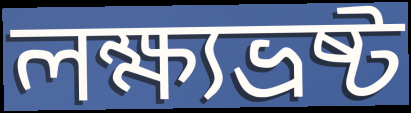
লক্ষ্যভ্রষ্ট